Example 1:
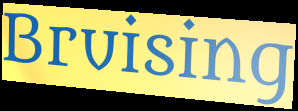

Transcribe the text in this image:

Bruising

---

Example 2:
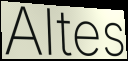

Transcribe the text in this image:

Altes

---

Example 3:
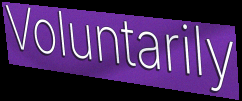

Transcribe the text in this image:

Voluntarily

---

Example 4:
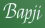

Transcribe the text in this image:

Bapji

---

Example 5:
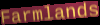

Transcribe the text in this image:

Farmlands